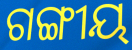
ଗଙ୍ଗୀୟ